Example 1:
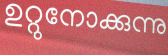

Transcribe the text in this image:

ഉറ്റുനോക്കുന്നു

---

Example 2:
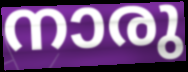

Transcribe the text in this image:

നാരു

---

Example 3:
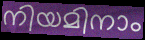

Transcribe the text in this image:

നിയമിനാം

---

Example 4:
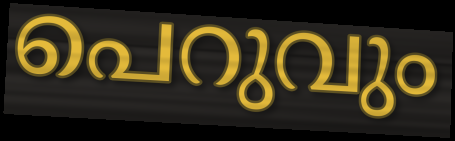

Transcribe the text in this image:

പെറുവും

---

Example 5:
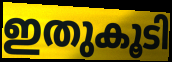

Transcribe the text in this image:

ഇതുകൂടി